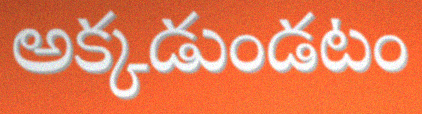
అక్కడుండటం